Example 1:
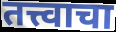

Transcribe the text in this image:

तत्त्वाचा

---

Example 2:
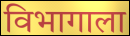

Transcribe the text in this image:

विभागाला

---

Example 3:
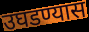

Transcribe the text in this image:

उघडण्यास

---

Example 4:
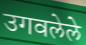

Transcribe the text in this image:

उगवलेले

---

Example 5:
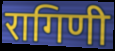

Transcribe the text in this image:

रागिणी